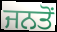
ਜਨਤੋਂ